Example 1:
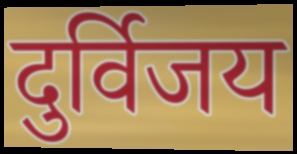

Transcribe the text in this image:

दुर्विजय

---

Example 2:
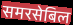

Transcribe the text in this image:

समरसेबिल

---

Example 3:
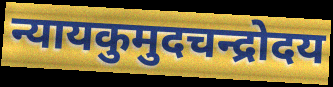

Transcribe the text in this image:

न्यायकुमुदचन्द्रोदय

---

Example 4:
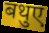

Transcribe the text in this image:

बथुए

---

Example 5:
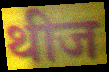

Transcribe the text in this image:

थीज